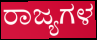
ರಾಜ್ಯಗಳ